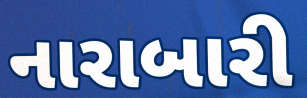
નારાબારી